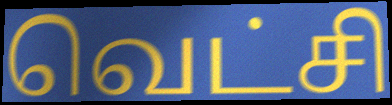
வெட்சி